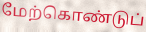
மேற்கொண்டுப்